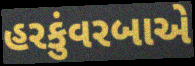
હરકુંવરબાએ